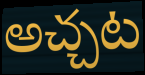
అచ్చట